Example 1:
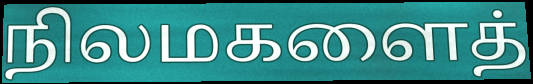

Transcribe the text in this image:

நிலமகளைத்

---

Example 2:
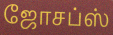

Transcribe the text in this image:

ஜோசப்ஸ்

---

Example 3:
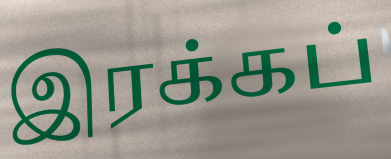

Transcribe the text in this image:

இரக்கப்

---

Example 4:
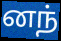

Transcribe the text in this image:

னந்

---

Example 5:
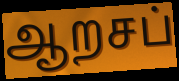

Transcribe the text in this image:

ஆறசப்